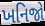
ખનિજો